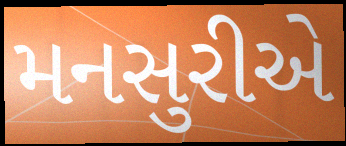
મનસુરીએ